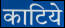
काटिये